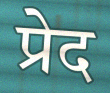
प्रेद